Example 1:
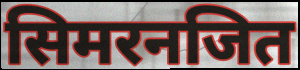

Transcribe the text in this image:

सिमरनजित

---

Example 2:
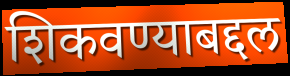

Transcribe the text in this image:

शिकवण्याबद्दल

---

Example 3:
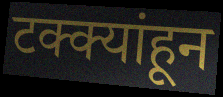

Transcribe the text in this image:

टक्क्यांहून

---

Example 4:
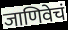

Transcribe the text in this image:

जाणिवेचं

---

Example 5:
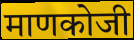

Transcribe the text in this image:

माणकोजी